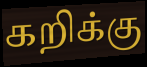
கறிக்கு